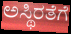
ಅಸ್ಥಿರತೆಗೆ